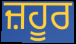
ਜ਼ਹੂਰ